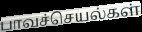
பாவச்செயல்கள்